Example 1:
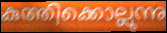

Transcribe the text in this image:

കുത്തിക്കൊല്ലുന്നു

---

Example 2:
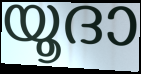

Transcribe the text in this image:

യൂദാ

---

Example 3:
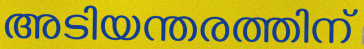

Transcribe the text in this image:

അടിയന്തരത്തിന്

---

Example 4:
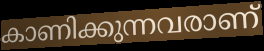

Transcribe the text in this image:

കാണിക്കുന്നവരാണ്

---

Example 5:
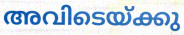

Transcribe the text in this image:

അവിടെയ്ക്കു